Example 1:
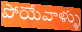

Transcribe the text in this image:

పోయేవాళ్ళు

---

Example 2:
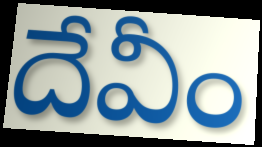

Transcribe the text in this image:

దేవీం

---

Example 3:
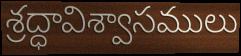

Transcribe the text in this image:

శ్రద్ధావిశ్వాసములు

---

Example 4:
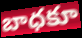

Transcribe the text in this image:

బాధకూ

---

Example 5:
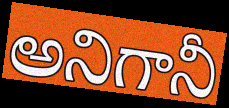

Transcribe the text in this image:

అనిగానీ